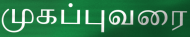
முகப்புவரை